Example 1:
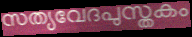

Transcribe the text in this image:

സത്യവേദപുസ്തകം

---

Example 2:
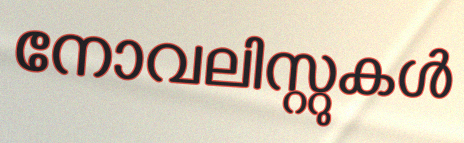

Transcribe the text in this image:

നോവലിസ്റ്റുകൾ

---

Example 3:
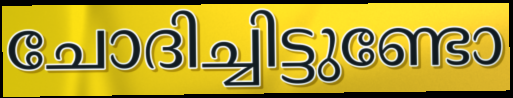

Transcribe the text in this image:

ചോദിച്ചിട്ടുണ്ടോ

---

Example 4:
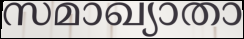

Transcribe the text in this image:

സമാഖ്യാതാ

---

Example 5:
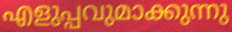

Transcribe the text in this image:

എളുപ്പവുമാക്കുന്നു